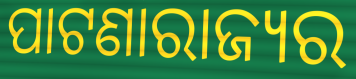
ପାଟଣାରାଜ୍ୟର